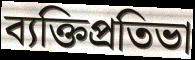
ব্যক্তিপ্রতিভা